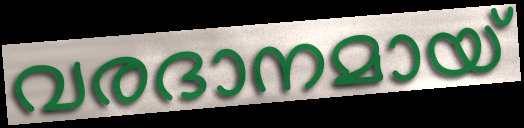
വരദാനമായ്